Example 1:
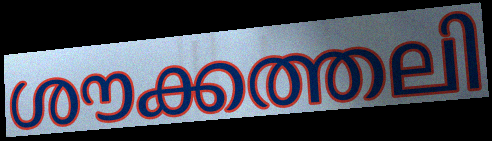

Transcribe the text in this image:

ശൗക്കത്തലി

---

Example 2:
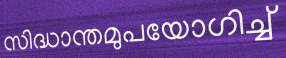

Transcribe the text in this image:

സിദ്ധാന്തമുപയോഗിച്ച്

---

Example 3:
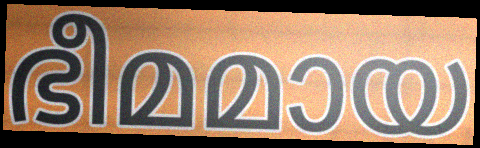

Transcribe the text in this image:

ഭീമമായ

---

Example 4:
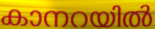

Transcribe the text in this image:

കാനറയിൽ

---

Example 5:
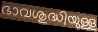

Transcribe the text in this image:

ഭാവശുദ്ധിയുള്ള